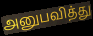
அனுபவித்து